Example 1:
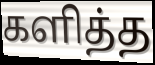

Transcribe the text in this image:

களித்த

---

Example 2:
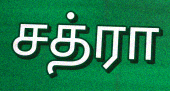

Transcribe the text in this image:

சத்ரா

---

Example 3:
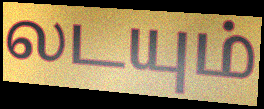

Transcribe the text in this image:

லடயும்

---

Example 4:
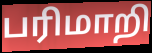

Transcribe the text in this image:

பரிமாறி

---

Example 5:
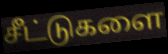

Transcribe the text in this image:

சீட்டுகளை